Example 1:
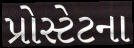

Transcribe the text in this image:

પ્રોસ્ટેટના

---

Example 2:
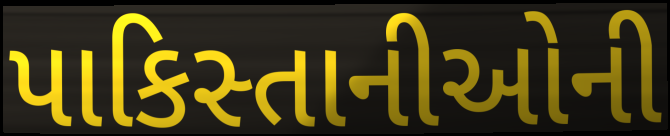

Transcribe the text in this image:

પાકિસ્તાનીઓની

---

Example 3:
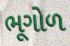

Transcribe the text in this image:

ભૂગોળ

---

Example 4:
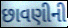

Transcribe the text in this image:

છાવણીની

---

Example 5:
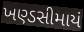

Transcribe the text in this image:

ખણ્ડસીમાયં